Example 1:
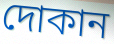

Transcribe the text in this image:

দোকান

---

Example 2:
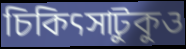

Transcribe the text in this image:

চিকিৎসাটুকুও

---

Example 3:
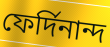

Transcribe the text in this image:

ফের্দিনান্দ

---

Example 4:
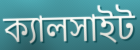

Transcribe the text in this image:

ক্যালসাইট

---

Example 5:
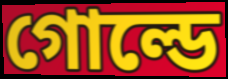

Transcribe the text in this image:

গোল্ডে